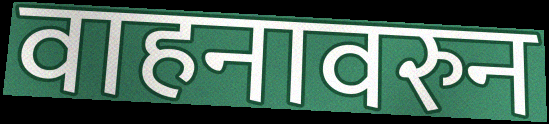
वाहनावरुन